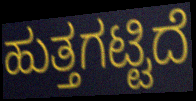
ಹುತ್ತಗಟ್ಟಿದೆ